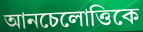
আনচেলোত্তিকে